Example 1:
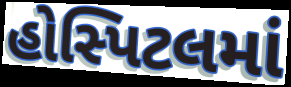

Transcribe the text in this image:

હોસ્પિટલમાં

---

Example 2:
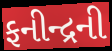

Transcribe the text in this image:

ફનીન્દ્રની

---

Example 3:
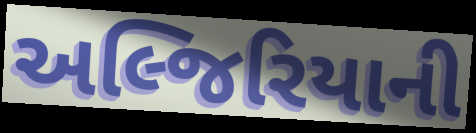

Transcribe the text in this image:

અલ્જિરિયાની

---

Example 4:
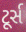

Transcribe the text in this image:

ટૂર્સ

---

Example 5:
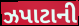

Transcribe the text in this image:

ઝપાટાની